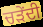
ਚੜੇਂਦੀ